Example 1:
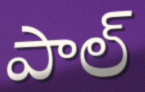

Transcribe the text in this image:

పాల్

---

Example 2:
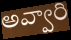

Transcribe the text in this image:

అవ్వారి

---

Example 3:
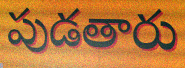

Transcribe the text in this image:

పుడతారు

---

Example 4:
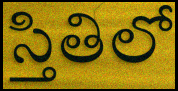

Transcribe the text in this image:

స్తితిలో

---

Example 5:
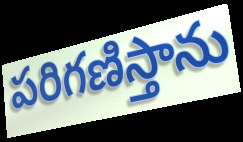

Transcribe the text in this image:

పరిగణిస్తాను